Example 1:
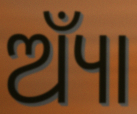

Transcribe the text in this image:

ଅ୍ୟାଁ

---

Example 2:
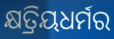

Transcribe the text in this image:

କ୍ଷତ୍ରିୟଧର୍ମର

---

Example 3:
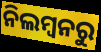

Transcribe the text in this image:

ନିଲମ୍ବନରୁ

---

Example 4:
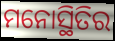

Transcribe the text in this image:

ମନୋସ୍ଥିତିର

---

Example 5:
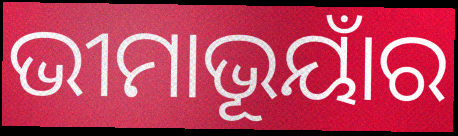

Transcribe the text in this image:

ଭୀମାଭୂୟାଁର